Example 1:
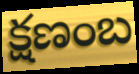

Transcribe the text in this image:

క్షణంబ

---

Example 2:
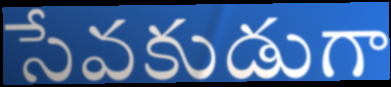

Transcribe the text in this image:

సేవకుడుగా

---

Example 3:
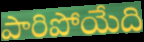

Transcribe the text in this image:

పారిపోయేది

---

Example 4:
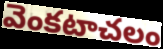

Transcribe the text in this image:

వెంకటాచలం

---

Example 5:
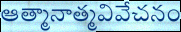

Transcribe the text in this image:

ఆత్మానాత్మవివేచనం